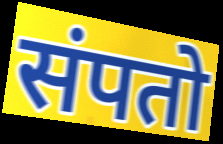
संपतो